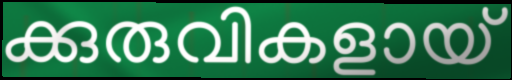
ക്കുരുവികളായ്